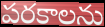
పరకాలను